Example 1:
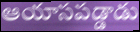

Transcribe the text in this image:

ఆయాసపడ్డాడు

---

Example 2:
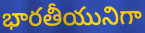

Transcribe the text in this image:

భారతీయునిగా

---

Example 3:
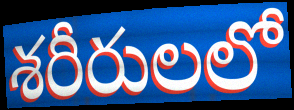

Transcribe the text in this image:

శరీరులలో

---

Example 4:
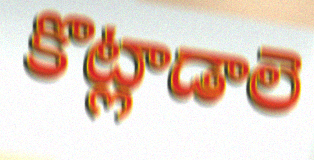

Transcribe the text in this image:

కొట్లాడాలె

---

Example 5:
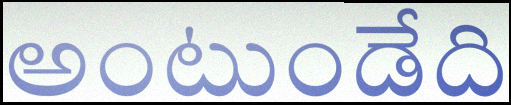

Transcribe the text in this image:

అంటుండేది